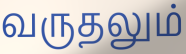
வருதலும்